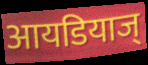
आयडियाज्